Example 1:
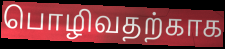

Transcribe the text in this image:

பொழிவதற்காக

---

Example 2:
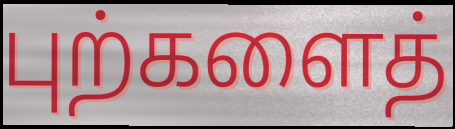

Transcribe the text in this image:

புற்களைத்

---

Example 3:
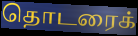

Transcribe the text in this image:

தொடரைக்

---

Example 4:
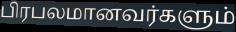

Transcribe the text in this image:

பிரபலமானவர்களும்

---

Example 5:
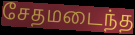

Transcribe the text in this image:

சேதமடைந்த